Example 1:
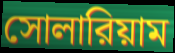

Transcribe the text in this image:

সোলারিয়াম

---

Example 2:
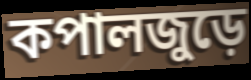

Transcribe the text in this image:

কপালজুড়ে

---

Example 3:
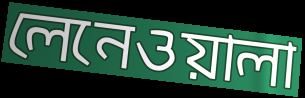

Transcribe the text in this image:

লেনেওয়ালা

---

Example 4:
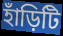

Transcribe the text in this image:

হাঁড়িটি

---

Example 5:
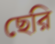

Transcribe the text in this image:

ছেরি